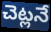
చెట్లనే